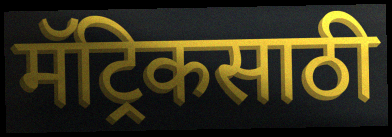
मॅट्रिकसाठी